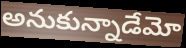
అనుకున్నాడేమో